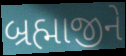
બ્રહ્માજીને